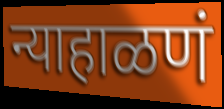
न्याहाळणं